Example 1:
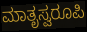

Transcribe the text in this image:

ಮಾತೃಸ್ವರೂಪಿ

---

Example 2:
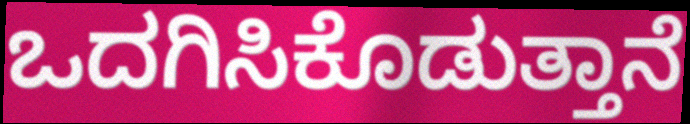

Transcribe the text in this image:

ಒದಗಿಸಿಕೊಡುತ್ತಾನೆ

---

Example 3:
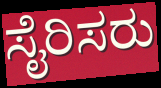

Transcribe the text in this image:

ಸೈರಿಸರು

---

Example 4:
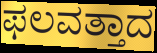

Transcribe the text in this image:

ಫಲವತ್ತಾದ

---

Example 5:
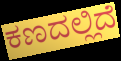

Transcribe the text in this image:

ಕಣದಲ್ಲಿದೆ